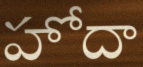
హోదా